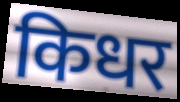
किधर